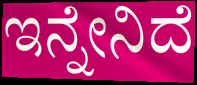
ಇನ್ನೇನಿದೆ